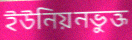
ইউনিয়নভুক্ত